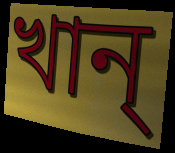
খান্